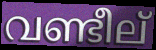
വണ്ടീല്